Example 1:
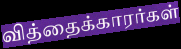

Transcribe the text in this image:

வித்தைக்காரர்கள்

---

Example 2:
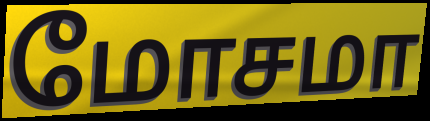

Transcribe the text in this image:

மோசமா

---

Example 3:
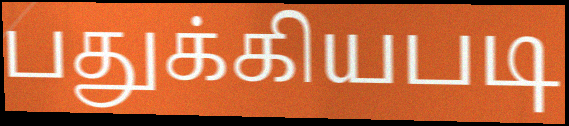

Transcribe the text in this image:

பதுக்கியபடி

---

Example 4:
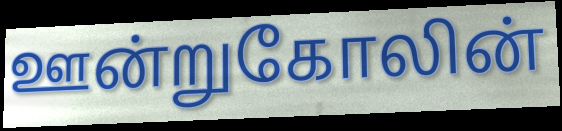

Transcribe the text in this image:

ஊன்றுகோலின்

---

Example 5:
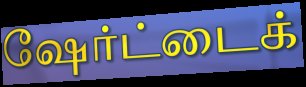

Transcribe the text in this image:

ஷேர்ட்டைக்